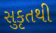
સુકૃતથી